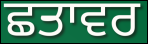
ਛਤਾਵਰ